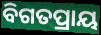
ବିଗତପ୍ରାୟ